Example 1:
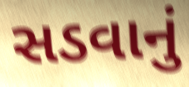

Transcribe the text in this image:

સડવાનું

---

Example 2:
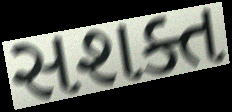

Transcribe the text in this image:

સશક્ત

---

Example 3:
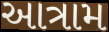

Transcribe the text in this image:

આત્રામ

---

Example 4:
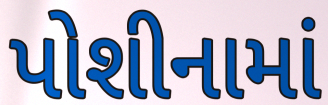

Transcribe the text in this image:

પોશીનામાં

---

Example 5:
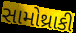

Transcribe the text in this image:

સામોથ્રાકી